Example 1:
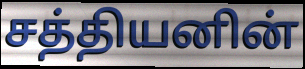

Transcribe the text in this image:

சத்தியனின்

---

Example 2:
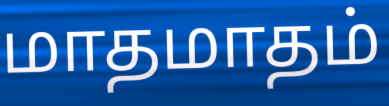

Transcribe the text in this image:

மாதமாதம்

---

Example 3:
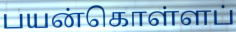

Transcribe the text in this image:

பயன்கொள்ளப்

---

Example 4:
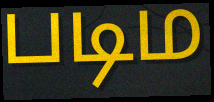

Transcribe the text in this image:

படிம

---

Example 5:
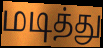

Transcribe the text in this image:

மடித்து